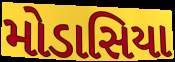
મોડાસિયા